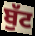
ਬੁੱਟ